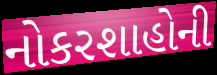
નોકરશાહોની